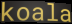
koala